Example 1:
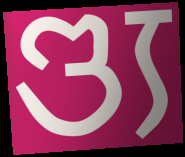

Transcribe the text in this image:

ণ্ড্য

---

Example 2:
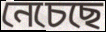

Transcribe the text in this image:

নেচেছে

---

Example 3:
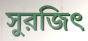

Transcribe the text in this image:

সুরজিৎ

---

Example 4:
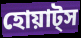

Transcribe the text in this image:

হোয়াট্স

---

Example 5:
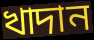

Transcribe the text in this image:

খাদান